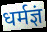
धर्मज्ञं